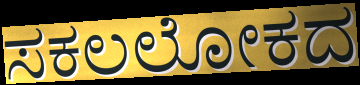
ಸಕಲಲೋಕದ